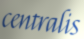
centralis